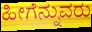
ಹೀಗೆನ್ನುವರು